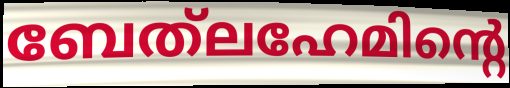
ബേത്‌ലഹേമിന്റെ